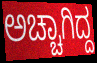
ಅಚ್ಚಾಗಿದ್ದ